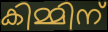
കിമ്മിന്